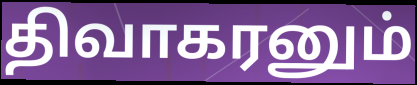
திவாகரனும்